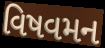
વિષવમન